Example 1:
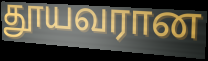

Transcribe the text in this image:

தூயவரான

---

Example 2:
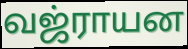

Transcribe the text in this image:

வஜ்ராயன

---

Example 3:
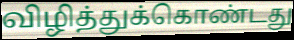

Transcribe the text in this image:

விழித்துக்கொண்டது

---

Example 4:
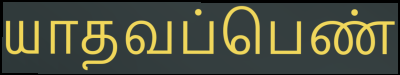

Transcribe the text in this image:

யாதவப்பெண்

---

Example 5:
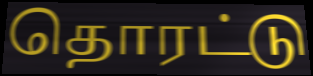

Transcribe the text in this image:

தொரட்டு